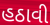
હઠાવી